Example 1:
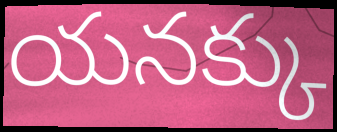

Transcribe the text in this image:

యనక్కు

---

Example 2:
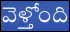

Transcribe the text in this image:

వెళ్తోంది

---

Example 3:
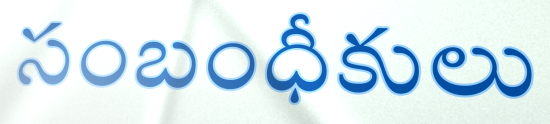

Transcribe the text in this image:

సంబంధీకులు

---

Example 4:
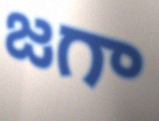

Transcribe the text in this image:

జగా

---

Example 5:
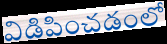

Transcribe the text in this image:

విడిపించడంలో